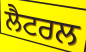
ਲੈਟਰਲ